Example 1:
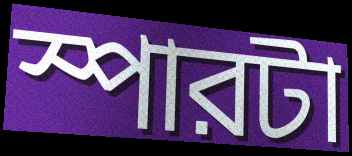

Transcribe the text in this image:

স্পারটা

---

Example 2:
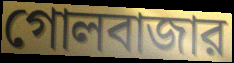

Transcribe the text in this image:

গোলবাজার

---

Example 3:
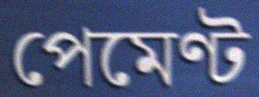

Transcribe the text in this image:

পেমেণ্ট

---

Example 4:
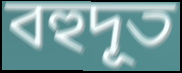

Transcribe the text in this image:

বহুদূত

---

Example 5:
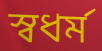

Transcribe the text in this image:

স্বধর্ম